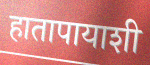
हातापायाशी